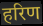
हरिण